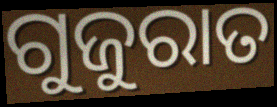
ଗୁଜୁରାତ